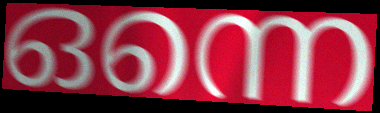
ഒന്നെ